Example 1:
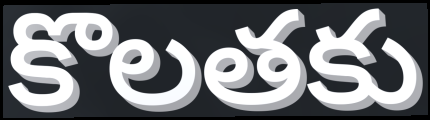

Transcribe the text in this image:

కొలతకు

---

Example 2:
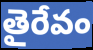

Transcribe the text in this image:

తైరేవం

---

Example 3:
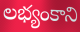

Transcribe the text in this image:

లభ్యంకాని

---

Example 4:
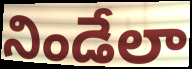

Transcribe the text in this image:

నిండేలా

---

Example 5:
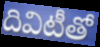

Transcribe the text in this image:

దివిటీతో